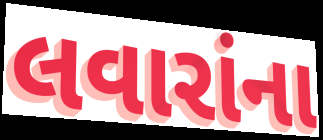
લવારાંના